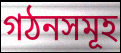
গঠনসমূহ